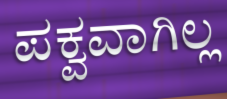
ಪಕ್ವವಾಗಿಲ್ಲ